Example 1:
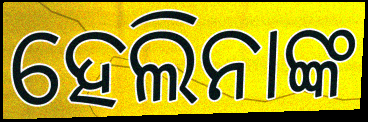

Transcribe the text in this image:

ହେଲିନାଙ୍କ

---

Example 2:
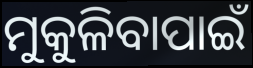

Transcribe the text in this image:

ମୁକୁଳିବାପାଇଁ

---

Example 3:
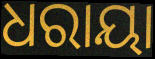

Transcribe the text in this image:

ଧରାୟା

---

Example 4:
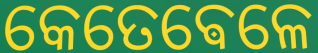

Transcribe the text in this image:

କେତେଵେଳେ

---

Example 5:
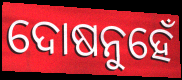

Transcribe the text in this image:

ଦୋଷନୁହେଁ